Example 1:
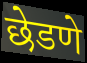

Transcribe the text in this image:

छेडणे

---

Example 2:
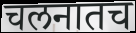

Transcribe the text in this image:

चलनातच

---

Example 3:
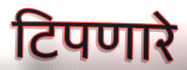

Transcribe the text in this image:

टिपणारे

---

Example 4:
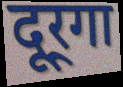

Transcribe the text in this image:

दूर्गा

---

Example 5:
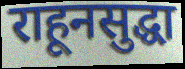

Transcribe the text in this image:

राहूनसुद्धा